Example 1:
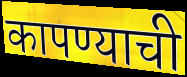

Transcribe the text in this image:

कापण्याची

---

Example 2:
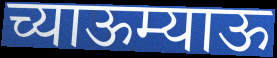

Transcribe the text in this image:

च्याऊम्याऊ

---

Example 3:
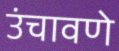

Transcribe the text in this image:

उंचावणे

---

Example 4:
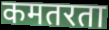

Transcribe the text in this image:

कमतरता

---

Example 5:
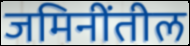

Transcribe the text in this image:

जमिनींतील